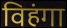
विहंगा